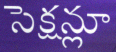
సెక్షన్లూ